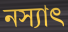
নস্যাৎ